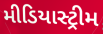
મીડિયાસ્ટ્રીમ